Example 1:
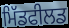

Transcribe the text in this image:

ਮਿੱਡਫੀਲਡ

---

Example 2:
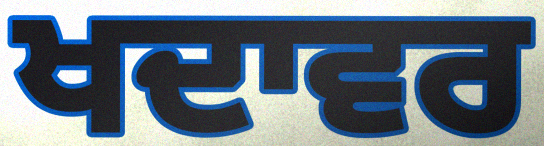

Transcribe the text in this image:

ਖਦਾਵਰ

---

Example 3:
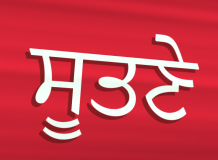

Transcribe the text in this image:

ਸੂਤਣੇ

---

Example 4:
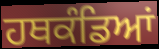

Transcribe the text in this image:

ਹਥਕੰਡਿਆਂ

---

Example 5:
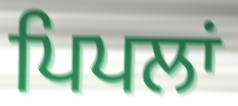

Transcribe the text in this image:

ਪਿਪਲਾਂ